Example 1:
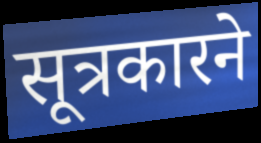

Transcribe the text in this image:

सूत्रकारने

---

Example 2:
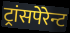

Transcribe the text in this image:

ट्रांसपेरेन्ट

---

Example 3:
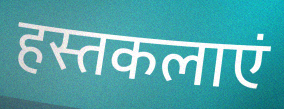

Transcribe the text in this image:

हस्तकलाएं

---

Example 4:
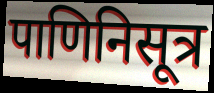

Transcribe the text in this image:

पाणिनिसूत्र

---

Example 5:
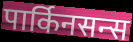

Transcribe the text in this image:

पार्किनसन्स